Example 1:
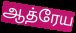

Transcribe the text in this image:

ஆத்ரேய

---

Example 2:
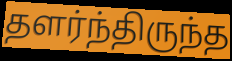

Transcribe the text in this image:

தளர்ந்திருந்த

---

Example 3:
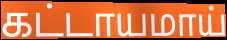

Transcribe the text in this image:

கட்டாயமாய்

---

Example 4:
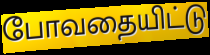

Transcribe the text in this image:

போவதையிட்டு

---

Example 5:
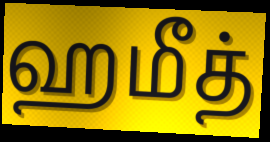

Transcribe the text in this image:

ஹமீத்